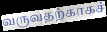
வருவதற்காகச்